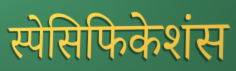
स्पेसिफिकेशंस